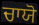
ਚਾਯੋ